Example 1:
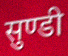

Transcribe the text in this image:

सुण्डी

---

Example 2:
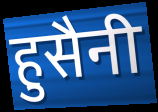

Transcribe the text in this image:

हुसैनी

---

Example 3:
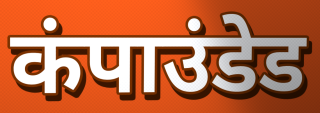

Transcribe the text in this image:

कंपाउंडेड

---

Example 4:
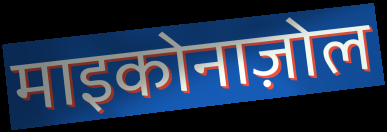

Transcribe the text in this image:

माइकोनाज़ोल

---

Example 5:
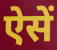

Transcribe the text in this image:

ऐसें